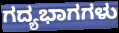
ಗದ್ಯಭಾಗಗಳು